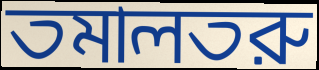
তমালতরু